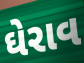
ઘેરાવ